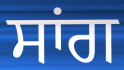
ਸਾਂਗ